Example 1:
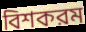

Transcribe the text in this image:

বিশকরম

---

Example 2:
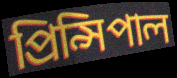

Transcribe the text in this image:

প্রিন্সিপাল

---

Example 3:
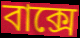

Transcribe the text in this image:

বাক্সে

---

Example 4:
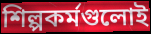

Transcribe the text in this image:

শিল্পকর্মগুলোই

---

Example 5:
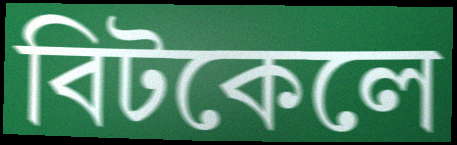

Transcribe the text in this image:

বিটকেলে